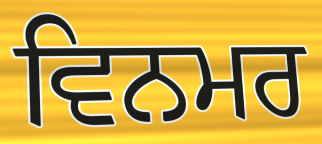
ਵਿਨਮਰ